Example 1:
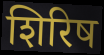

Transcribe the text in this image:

शिरिष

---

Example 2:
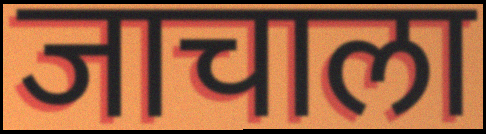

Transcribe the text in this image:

जाचाला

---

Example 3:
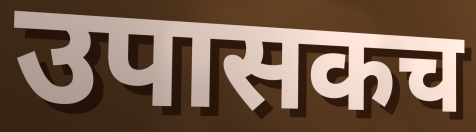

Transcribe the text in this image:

उपासकच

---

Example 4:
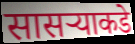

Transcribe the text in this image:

सासऱ्याकडे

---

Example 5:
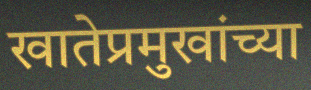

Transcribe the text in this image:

खातेप्रमुखांच्या